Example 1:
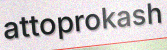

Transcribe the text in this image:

attoprokash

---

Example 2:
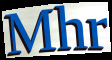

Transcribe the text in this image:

Mhr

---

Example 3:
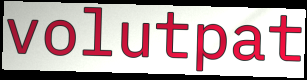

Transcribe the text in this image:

volutpat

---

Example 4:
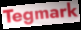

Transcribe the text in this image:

Tegmark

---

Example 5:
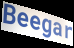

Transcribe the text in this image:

Beegar